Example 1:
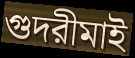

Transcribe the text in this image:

গুদরীমাই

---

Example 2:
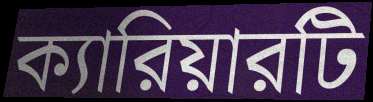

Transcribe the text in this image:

ক্যারিয়ারটি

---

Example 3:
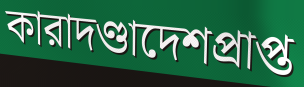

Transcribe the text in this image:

কারাদণ্ডাদেশপ্রাপ্ত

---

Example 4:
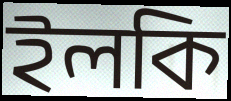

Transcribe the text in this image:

ইলকি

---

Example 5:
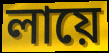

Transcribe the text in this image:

লায়ে